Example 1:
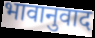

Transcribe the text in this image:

भावानुवाद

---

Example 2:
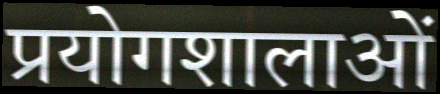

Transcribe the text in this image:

प्रयोगशालाओं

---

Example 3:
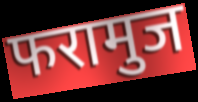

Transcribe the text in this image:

फरामुज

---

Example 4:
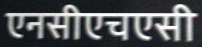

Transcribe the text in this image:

एनसीएचएसी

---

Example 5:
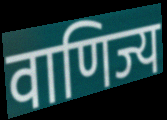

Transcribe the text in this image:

वाणिज्य